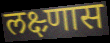
लक्ष्र्णास